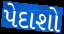
પેદાશો